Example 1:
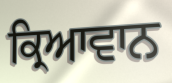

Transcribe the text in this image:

ਕ੍ਰਿਆਵਾਨ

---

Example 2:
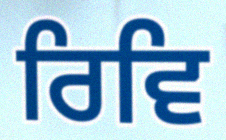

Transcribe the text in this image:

ਰਿਵਿ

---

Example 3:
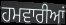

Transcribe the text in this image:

ਹਮਵਾਰੀਆਂ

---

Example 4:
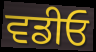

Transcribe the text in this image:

ਵਡੀਓ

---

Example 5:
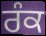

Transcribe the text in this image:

ਰੰਕ